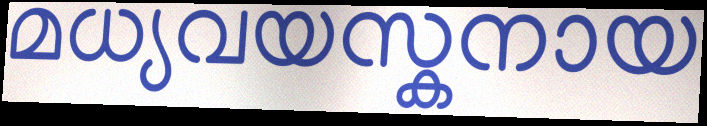
മധ്യവയസ്കനായ